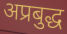
अप्रबुद्ध